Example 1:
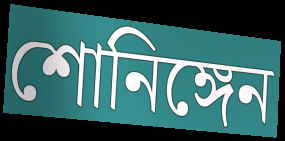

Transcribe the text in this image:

শোনিঙ্গেন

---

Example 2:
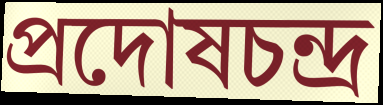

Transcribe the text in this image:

প্রদোষচন্দ্র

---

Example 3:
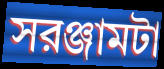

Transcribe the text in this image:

সরঞ্জামটা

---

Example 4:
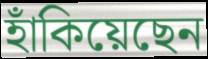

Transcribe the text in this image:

হাঁকিয়েছেন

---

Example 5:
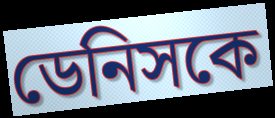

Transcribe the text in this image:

ডেনিসকে